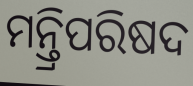
ମନ୍ତ୍ରିପରିଷଦ